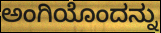
ಅಂಗಿಯೊಂದನ್ನು